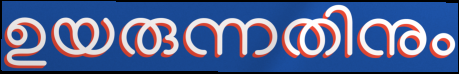
ഉയരുന്നതിനും